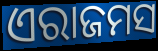
ଏରାଜମସ